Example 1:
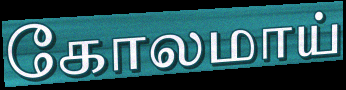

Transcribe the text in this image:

கோலமாய்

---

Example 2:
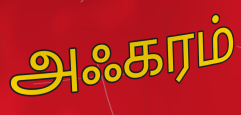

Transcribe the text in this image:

அஃகரம்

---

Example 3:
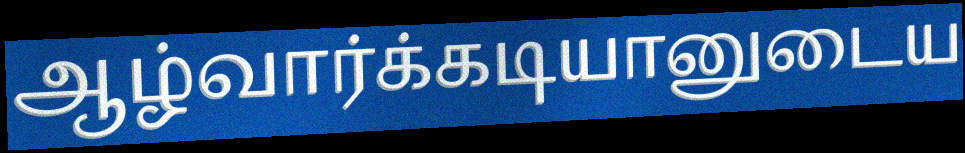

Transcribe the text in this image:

ஆழ்வார்க்கடியானுடைய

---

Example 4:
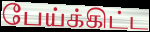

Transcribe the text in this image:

பேய்க்கிட்ட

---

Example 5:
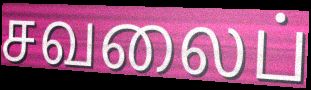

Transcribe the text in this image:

சவலைப்